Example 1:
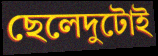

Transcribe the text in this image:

ছেলেদুটোই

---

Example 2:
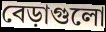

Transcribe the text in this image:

বেড়াগুলো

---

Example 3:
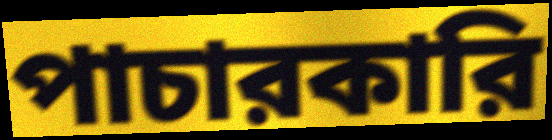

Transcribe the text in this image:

পাচারকারি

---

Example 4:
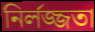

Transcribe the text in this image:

নির্লজ্জতা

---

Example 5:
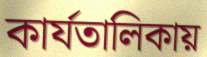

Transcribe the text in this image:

কার্যতালিকায়